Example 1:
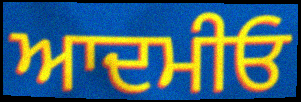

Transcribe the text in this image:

ਆਦਮੀਓ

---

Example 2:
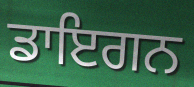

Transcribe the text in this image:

ਡਾਇਗਨ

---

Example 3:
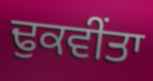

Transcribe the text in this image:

ਢੁਕਵੀਂਤਾ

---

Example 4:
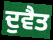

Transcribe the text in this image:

ਦੁਵੈਤ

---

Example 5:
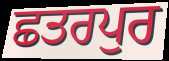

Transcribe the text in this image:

ਛਤਰਪੁਰ